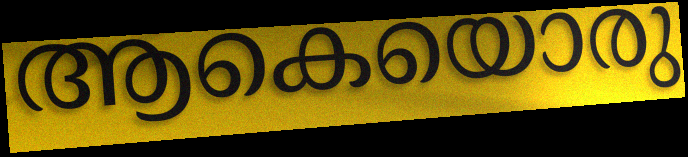
ആകെയൊരു